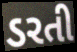
ડરતી